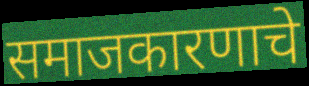
समाजकारणाचे